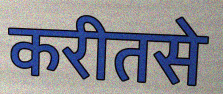
करीतसे